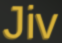
Jiv